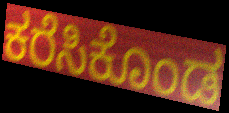
ಕರೆಸಿಕೊಂಡ